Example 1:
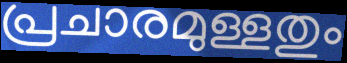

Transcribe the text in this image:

പ്രചാരമുള്ളതും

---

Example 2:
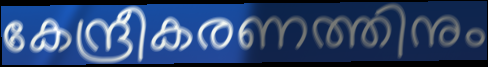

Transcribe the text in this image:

കേന്ദ്രീകരണത്തിനും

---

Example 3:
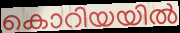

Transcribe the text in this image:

കൊറിയയിൽ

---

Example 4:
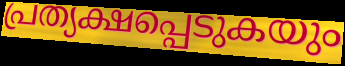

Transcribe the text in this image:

പ്രത്യക്ഷപ്പെടുകയും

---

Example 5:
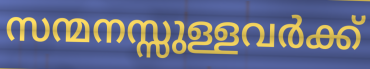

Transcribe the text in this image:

സന്മനസ്സുള്ളവർക്ക്